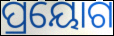
ପ୍ରୟୋଗ